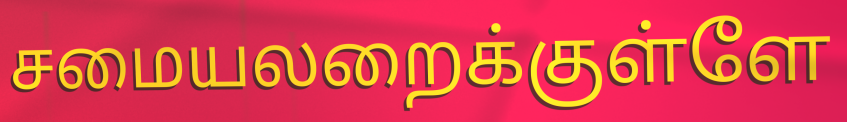
சமையலறைக்குள்ளே